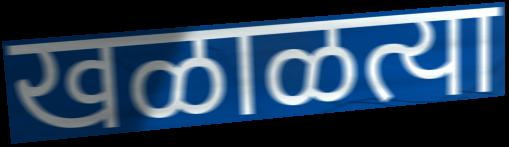
खळाळत्या